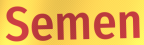
Semen